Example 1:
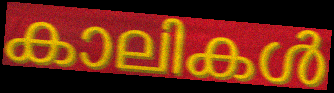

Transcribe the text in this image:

കാലികൾ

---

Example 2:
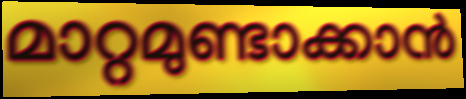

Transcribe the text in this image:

മാറ്റമുണ്ടാക്കാൻ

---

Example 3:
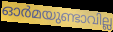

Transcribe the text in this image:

ഓർമയുണ്ടാവില്ല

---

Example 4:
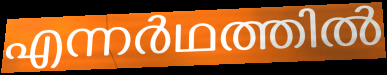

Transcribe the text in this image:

എന്നർഥത്തിൽ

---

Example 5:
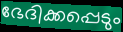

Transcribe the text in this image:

ഭേദിക്കപ്പെടും